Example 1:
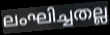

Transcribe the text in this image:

ലംഘിച്ചതല്ല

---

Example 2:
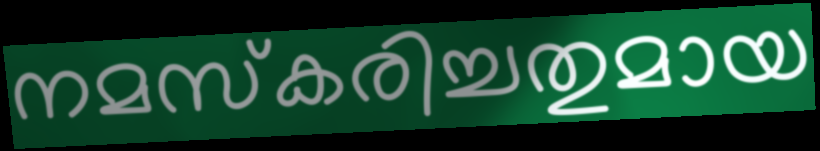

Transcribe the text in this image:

നമസ്കരിച്ചതുമായ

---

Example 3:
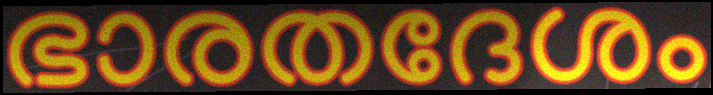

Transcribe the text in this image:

ഭാരതദേശം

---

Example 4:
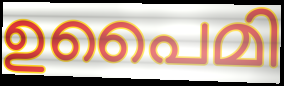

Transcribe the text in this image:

ഉപൈമി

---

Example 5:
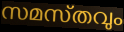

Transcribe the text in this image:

സമസ്‌തവും